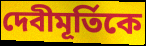
দেবীমূর্তিকে